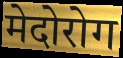
मेदोरोग